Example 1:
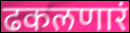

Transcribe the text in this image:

ढकलणारं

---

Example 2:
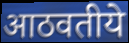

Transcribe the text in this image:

आठवतीये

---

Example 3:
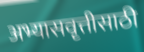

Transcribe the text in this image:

अभ्यासवृत्तीसाठी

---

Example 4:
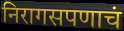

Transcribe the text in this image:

निरागसपणाचं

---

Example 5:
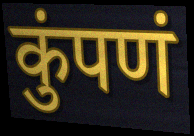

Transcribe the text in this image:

कुंपणं